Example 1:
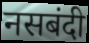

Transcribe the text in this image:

नसबंदी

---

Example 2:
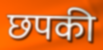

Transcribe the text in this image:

छपकी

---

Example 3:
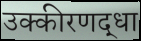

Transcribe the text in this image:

उक्कीरणद्धा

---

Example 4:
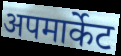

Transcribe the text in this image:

अपमार्केट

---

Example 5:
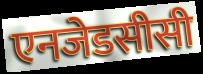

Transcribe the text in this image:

एनजेडसीसी